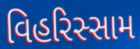
વિહરિસ્સામ